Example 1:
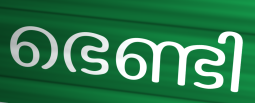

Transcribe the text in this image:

ഭെണ്ടി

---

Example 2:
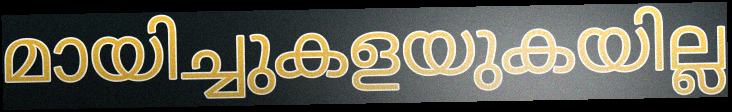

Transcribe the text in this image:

മായിച്ചുകളയുകയില്ല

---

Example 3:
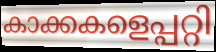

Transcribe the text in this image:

കാക്കകളെപ്പറ്റി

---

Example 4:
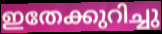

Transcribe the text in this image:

ഇതേക്കുറിച്ചു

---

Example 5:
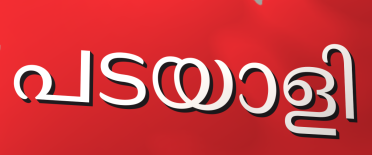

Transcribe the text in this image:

പടയാളി